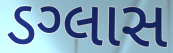
ડગ્લાસ